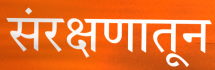
संरक्षणातून